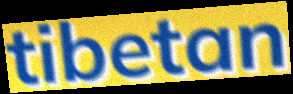
tibetan